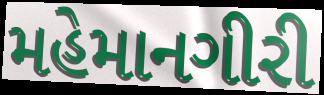
મહેમાનગીરી